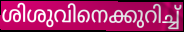
ശിശുവിനെക്കുറിച്ച്